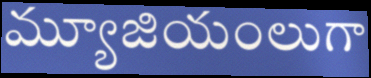
మ్యూజియంలుగా